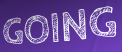
GOING